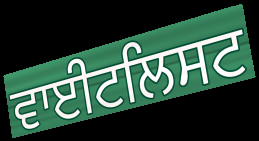
ਵਾਈਟਲਿਸਟ